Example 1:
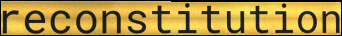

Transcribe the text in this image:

reconstitution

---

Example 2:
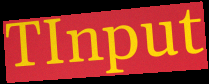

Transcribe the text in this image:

TInput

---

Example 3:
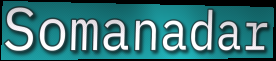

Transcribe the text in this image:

Somanadar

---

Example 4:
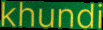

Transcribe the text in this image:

khundi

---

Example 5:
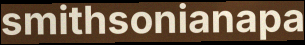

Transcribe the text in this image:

smithsonianapa